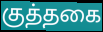
குத்தகை